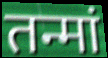
तन्मां